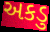
અકડુ